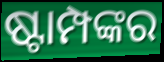
ଷ୍ଟାମ୍ପଙ୍କର